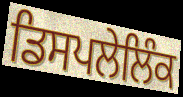
ਡਿਸਪਲੇਲਿੰਕ